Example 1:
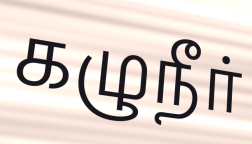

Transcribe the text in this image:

கழுநீர்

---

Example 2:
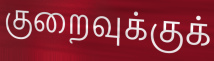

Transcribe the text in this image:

குறைவுக்குக்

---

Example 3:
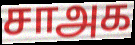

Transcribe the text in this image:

சாஅக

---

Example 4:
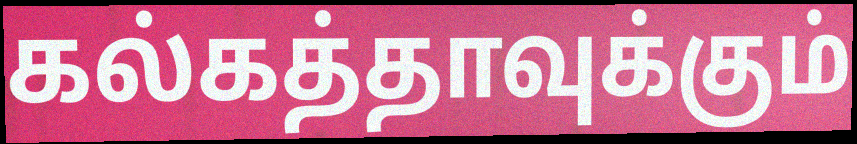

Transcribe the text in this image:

கல்கத்தாவுக்கும்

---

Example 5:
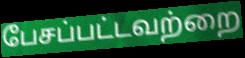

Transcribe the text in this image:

பேசப்பட்டவற்றை